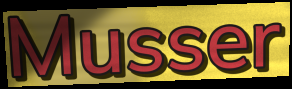
Musser